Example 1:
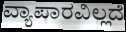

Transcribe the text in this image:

ವ್ಯಾಪಾರವಿಲ್ಲದೆ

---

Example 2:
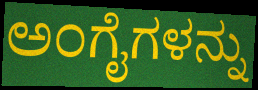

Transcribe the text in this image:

ಅಂಗೈಗಳನ್ನು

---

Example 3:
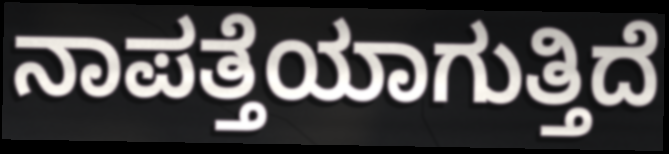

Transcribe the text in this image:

ನಾಪತ್ತೆಯಾಗುತ್ತಿದೆ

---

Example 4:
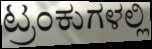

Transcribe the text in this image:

ಟ್ರಂಕುಗಳಲ್ಲಿ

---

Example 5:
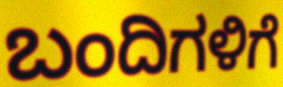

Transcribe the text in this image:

ಬಂದಿಗಳಿಗೆ